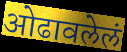
ओढावलेलं